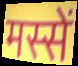
मस्सें